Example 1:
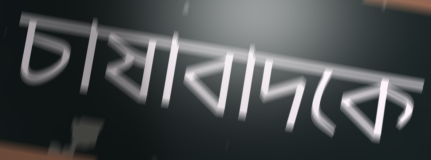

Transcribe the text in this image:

চাষাবাদকে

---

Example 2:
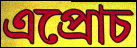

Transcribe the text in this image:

এপ্রোচ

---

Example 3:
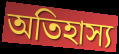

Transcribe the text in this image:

অতিহাস্য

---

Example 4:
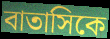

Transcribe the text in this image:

বাতাসিকে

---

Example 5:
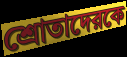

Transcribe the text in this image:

শ্রোতাদেরকে